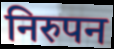
निरुपन